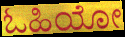
ಓಹಿಯೋ